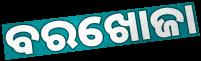
ବରଖୋଜା